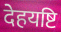
देहयष्टि